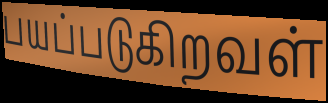
பயப்படுகிறவள்